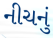
નીચનું